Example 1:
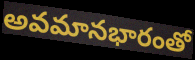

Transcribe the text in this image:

అవమానభారంతో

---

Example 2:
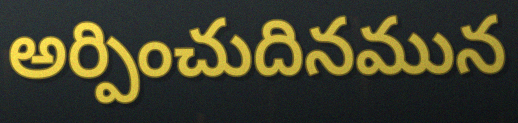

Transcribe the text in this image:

అర్పించుదినమున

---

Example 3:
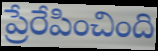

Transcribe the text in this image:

ప్రేరేపించింది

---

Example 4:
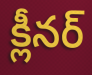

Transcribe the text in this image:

క్లీనర్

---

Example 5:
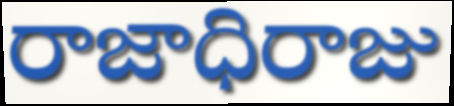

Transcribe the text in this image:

రాజాధిరాజు